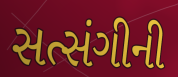
સત્સંગીની